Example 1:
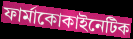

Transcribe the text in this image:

ফার্মাকোকাইনেটিক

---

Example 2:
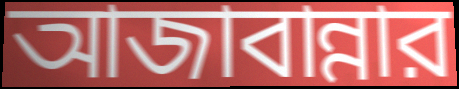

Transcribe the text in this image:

আজাবান্নার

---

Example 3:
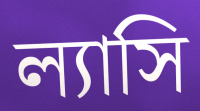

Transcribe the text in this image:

ল্যাসি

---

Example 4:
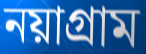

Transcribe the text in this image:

নয়াগ্রাম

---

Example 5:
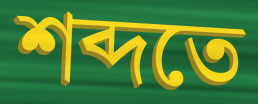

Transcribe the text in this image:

শব্দতে